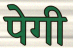
पेगी